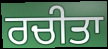
ਰਚੀਤਾ